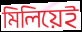
মিলিয়েই